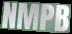
NMPB